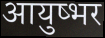
आयुष्भर